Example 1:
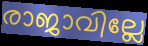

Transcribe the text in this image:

രാജാവില്ലേ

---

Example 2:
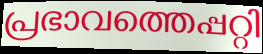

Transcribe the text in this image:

പ്രഭാവത്തെപ്പറ്റി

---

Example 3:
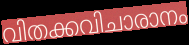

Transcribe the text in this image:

വിതക്കവിചാരാനം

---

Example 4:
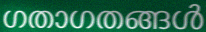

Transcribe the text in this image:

ഗതാഗതങ്ങൾ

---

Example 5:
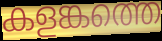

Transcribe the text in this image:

കളങ്കത്തെ